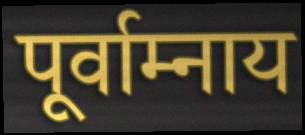
पूर्वाम्नाय